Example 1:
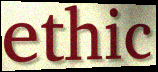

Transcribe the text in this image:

ethic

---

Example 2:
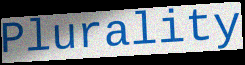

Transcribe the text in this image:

Plurality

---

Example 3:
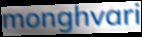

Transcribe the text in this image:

monghvari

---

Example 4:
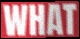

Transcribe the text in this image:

WHAT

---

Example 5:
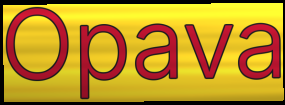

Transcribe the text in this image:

Opava